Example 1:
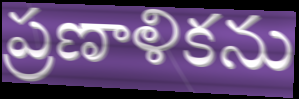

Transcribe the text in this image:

ప్రణాళికను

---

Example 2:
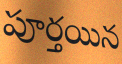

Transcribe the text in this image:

పూర్తయిన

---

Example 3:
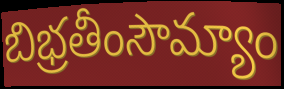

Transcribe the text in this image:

బిభ్రతీంసౌమ్యాం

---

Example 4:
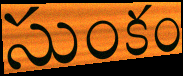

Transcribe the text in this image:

సుంకం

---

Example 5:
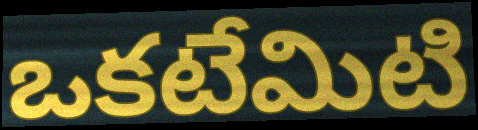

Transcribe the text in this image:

ఒకటేమిటి